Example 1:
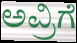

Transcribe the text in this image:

ಅವ್ರಿಗೆ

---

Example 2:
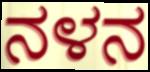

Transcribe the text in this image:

ನಳನ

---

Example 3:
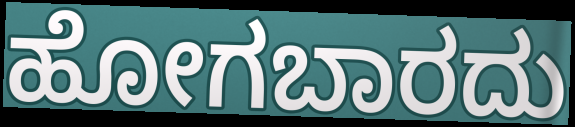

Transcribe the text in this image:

ಹೋಗಬಾರದು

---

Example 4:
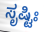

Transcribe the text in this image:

ಸೃಷ್ಟಿಃ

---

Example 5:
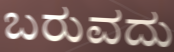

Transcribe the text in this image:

ಬರುವದು